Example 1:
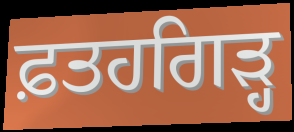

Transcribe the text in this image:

ਫ਼ਤਹਗਿੜ੍ਹ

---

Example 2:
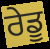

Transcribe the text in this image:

ਰੇਡੂ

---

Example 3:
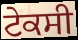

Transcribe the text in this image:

ਟੇਕਸੀ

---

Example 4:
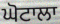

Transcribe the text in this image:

ਘੋਟਾਲਾ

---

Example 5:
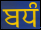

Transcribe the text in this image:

ਬਧੰ